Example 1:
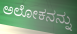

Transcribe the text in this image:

ಅಲೋಕನನ್ನು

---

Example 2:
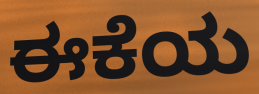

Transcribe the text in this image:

ಈಕೆಯ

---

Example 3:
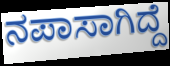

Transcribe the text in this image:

ನಪಾಸಾಗಿದ್ದೆ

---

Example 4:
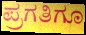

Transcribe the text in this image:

ಪ್ರಗತಿಗೂ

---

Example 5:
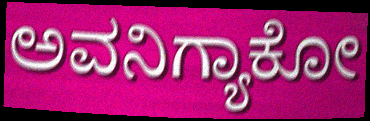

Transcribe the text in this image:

ಅವನಿಗ್ಯಾಕೋ